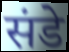
संडे